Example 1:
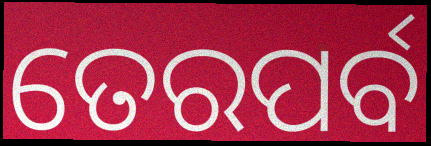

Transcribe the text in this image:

ତେରପର୍ବ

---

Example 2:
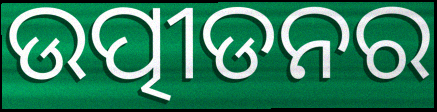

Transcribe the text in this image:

ଉତ୍ପୀଡନର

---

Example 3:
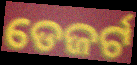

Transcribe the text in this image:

ଡେଜର୍ଟ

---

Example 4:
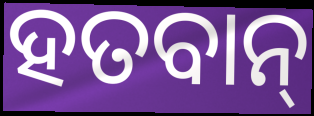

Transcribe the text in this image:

ହତବାନ୍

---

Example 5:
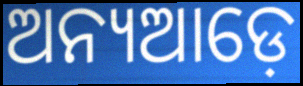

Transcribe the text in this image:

ଅନ୍ୟଆଡ଼େ